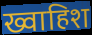
ख्वाहिश